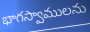
భాగస్వాములను